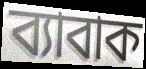
ব্যাবাক